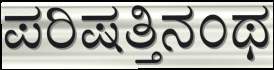
ಪರಿಷತ್ತಿನಂಥ